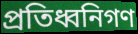
প্রতিধ্বনিগণ